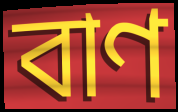
বাণ